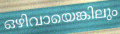
ഒഴിവായെങ്കിലും